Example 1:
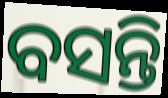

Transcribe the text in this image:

ବସନ୍ତି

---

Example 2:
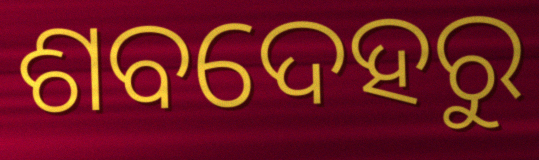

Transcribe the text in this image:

ଶବଦେହରୁ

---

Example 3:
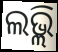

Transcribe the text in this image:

ଲଭ୍ଲି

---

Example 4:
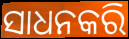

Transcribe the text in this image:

ସାଧନକରି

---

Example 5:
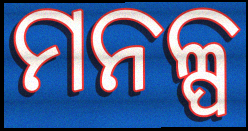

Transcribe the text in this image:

ମନଳ୍ପ